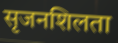
सृजनशिलता